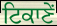
ਟਿਕਾਣੇਂ